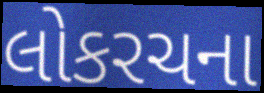
લોકરચના